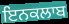
ਇਨਕਲਾਬ